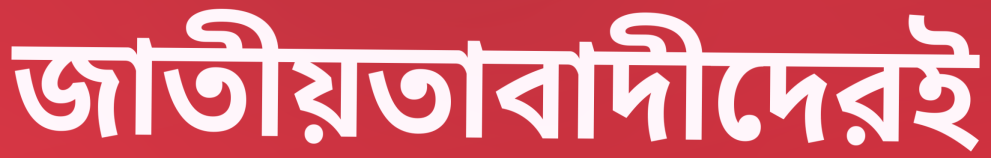
জাতীয়তাবাদীদেরই